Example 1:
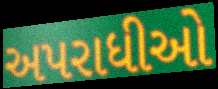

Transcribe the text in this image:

અપરાધીઓ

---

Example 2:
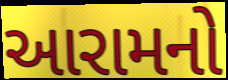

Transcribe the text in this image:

આરામનો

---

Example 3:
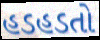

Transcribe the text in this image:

હડહડતો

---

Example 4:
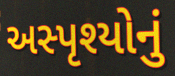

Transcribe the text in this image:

અસ્પૃશ્યોનું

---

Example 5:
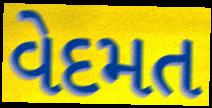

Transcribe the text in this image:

વેદમત